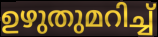
ഉഴുതുമറിച്ച്